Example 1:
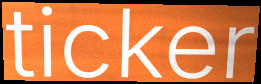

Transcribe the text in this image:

ticker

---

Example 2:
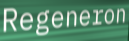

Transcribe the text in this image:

Regeneron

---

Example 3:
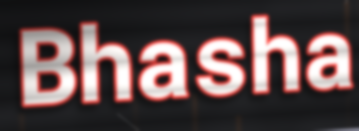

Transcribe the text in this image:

Bhasha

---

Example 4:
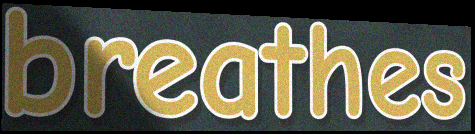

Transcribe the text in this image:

breathes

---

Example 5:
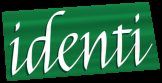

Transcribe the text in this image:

identi